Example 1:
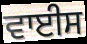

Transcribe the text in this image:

ਵਾਈਸ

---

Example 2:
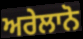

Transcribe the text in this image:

ਅਰੇਲਾਨੋ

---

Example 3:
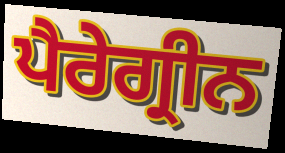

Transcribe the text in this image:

ਪੈਰੇਗ੍ਰੀਨ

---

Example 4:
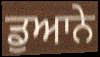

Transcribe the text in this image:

ਡੁਆਨੇ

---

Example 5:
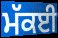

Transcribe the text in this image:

ਮੱਕਈ